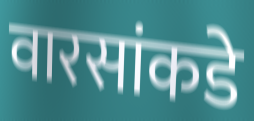
वारसांकडे